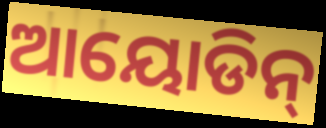
ଆୟୋଡିନ୍